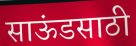
साऊंडसाठी